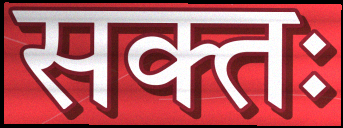
सक्तः